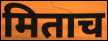
मिताच